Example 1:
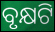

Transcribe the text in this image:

ବୃକ୍ଷଟି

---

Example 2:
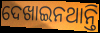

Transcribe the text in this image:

ଦେଖାଇନଥାନ୍ତି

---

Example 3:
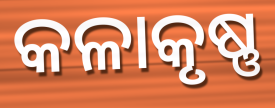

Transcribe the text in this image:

କଳାକୃଷ୍ଣ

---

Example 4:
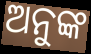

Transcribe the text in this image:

ଅନୁଙ୍କ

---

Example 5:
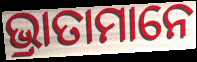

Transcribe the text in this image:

ଭ୍ରାତାମାନେ